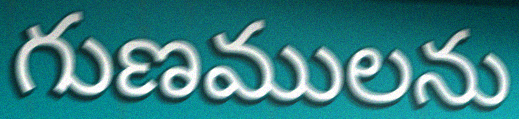
గుణములను